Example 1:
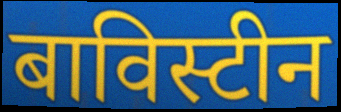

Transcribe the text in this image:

बाविस्टीन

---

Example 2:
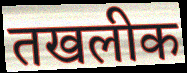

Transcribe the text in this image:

तखलीक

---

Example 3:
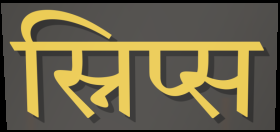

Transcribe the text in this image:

स्निप्स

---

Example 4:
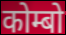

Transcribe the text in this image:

कोम्बो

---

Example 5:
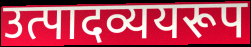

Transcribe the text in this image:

उत्पादव्ययरूप